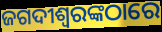
ଜଗଦୀଶ୍ୱରଙ୍କଠାରେ